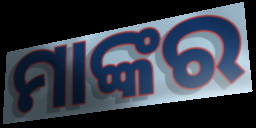
ମାଙ୍କର